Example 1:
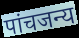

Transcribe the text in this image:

पांचजन्य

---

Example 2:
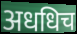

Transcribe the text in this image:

अधधिच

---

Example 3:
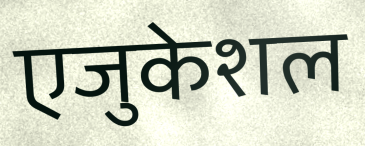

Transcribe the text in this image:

एजुकेशल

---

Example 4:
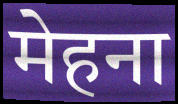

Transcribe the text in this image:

मेहना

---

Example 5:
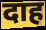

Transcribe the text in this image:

दाह